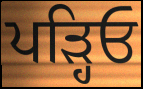
ਪੜ੍ਹਿਓ